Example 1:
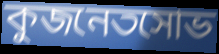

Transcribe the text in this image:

কুজনেতসোভ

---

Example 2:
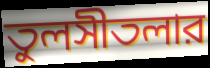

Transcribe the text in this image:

তুলসীতলার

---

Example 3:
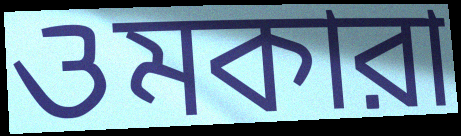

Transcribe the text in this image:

ওমকারা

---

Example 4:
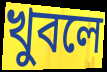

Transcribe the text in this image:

খুবলে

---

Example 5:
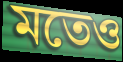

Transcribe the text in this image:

মতেও